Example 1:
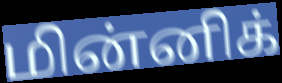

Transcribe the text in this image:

மின்னிக்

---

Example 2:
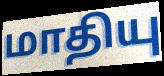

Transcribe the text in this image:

மாதியு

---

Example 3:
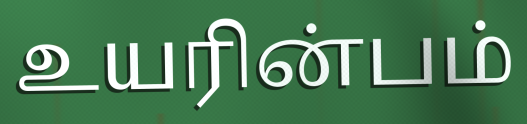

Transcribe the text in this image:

உயரின்பம்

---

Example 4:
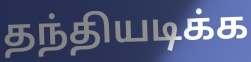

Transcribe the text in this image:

தந்தியடிக்க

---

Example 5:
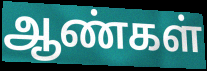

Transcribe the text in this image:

ஆண்கள்